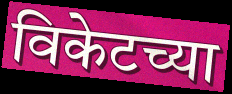
विकेटच्या